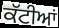
ਕੱਟੀਆਂ